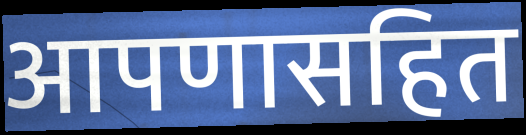
आपणासहित